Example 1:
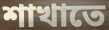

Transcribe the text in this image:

শাখাতে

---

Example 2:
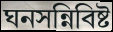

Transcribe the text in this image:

ঘনসন্নিবিষ্ট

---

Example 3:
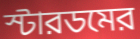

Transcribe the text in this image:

স্টারডমের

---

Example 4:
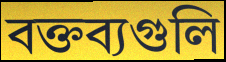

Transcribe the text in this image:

বক্তব্যগুলি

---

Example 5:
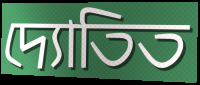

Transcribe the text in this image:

দ্যোতিত